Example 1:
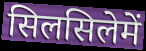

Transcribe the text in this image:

सिलसिलेमें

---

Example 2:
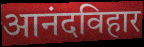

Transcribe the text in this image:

आनंदविहार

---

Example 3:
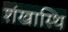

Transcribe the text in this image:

शंखास्थि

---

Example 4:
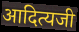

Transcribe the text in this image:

आदित्यजी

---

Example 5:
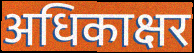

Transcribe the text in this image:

अधिकाक्षर